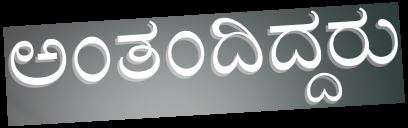
ಅಂತಂದಿದ್ದರು